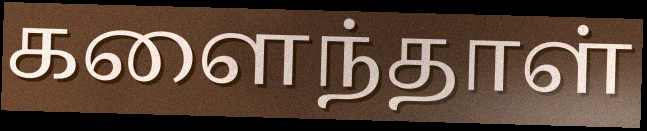
களைந்தாள்